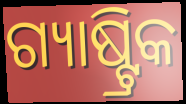
ଗ୍ୟାଷ୍ଟ୍ରିକ